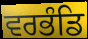
ਵਰਭੰਡਿ